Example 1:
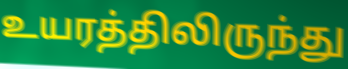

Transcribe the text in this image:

உயரத்திலிருந்து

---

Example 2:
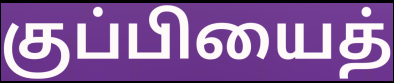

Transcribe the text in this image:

குப்பியைத்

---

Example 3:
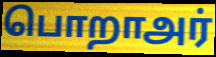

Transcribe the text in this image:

பொறாஅர்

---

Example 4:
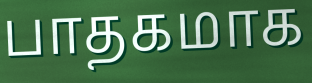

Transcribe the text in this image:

பாதகமாக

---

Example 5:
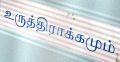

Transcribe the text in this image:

உருத்திராக்கமும்